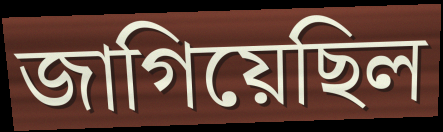
জাগিয়েছিল